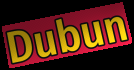
Dubun